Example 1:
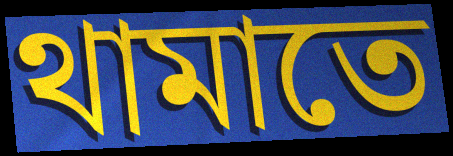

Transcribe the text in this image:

থামাতে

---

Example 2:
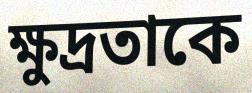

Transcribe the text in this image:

ক্ষুদ্রতাকে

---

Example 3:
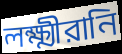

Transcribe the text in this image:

লক্ষ্মীরানি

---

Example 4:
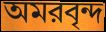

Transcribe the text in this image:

অমরবৃন্দ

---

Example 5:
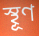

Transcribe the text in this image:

স্থূণ